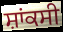
ਸ਼ਾਂਕਸੀ